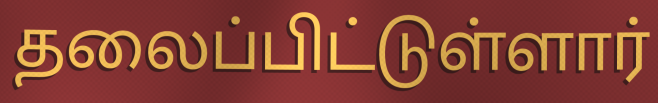
தலைப்பிட்டுள்ளார்